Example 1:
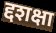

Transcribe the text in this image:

द्दशक्षा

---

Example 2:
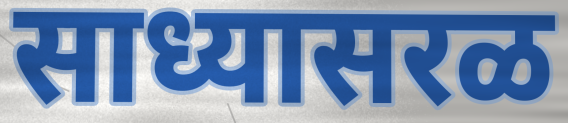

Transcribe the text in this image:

साध्यासरळ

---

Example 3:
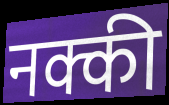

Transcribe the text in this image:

नक्की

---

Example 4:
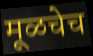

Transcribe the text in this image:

मूळचेच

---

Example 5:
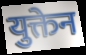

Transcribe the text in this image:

युक्तेन